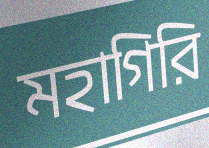
মহাগিরি